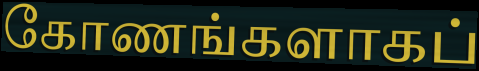
கோணங்களாகப்